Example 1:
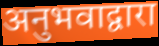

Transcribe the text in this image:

अनुभवाद्वारा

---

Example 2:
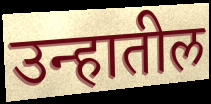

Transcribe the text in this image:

उन्हातील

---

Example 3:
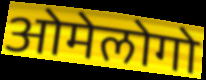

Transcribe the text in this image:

ओमेलोगो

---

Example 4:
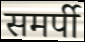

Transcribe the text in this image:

समर्पी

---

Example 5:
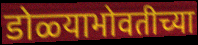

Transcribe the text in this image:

डोळ्याभोवतीच्या